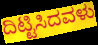
ದಿಟ್ಟಿಸಿದವಳು